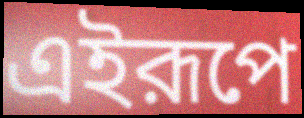
এইরূপে